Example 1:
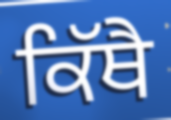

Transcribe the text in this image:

ਕਿੱਥੈ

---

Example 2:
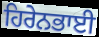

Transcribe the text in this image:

ਹਿਰੇਨਭਾਈ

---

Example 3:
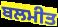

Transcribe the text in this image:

ਬਲਮੀਤ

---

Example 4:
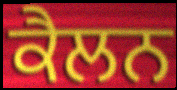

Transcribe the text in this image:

ਕੈਲਨ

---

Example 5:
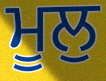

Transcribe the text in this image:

ਮੂਲੁ